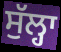
ਸੁੱਲ੍ਹਾ